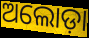
ଅଲୋଡ଼ା